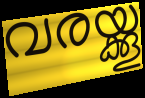
വരയ്ക്കൂ